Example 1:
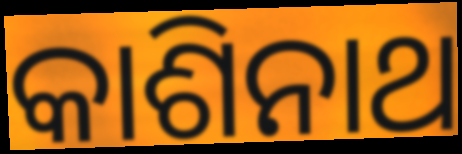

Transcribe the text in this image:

କାଶିନାଥ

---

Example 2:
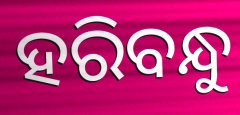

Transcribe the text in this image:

ହରିବନ୍ଧୁ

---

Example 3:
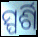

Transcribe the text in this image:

ସ୍ପର୍ଶି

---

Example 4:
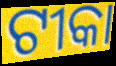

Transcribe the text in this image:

ଟୀକା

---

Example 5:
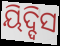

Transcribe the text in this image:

ୟିଦ୍ଦିସ